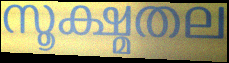
സൂക്ഷ്മതല